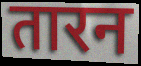
तारन